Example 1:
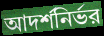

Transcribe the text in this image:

আদর্শনির্ভর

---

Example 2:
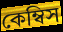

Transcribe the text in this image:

কেম্বিস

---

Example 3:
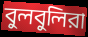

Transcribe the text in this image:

বুলবুলিরা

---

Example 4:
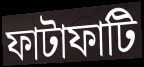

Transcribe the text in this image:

ফাটাফাটি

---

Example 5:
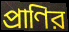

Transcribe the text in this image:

প্রাণির